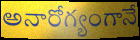
అనారోగ్యంగానే